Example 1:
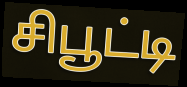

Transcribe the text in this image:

சிபூட்டி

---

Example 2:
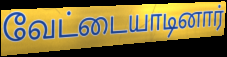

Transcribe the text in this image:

வேட்டையாடினார்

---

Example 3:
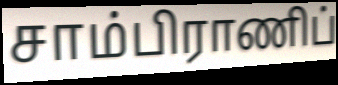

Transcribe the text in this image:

சாம்பிராணிப்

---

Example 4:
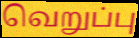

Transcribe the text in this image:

வெறுப்பு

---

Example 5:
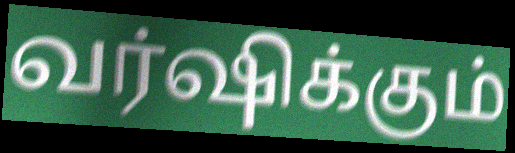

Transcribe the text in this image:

வர்ஷிக்கும்